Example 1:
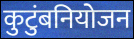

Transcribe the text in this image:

कुटुंबनियोजन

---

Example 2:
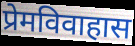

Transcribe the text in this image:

प्रेमविवाहास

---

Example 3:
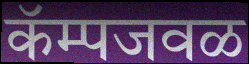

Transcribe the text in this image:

कॅम्पजवळ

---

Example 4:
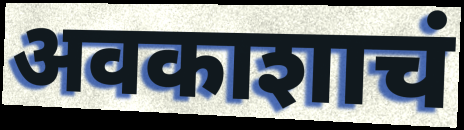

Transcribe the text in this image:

अवकाशाचं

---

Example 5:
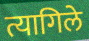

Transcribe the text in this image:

त्यागिले